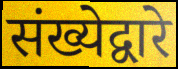
संख्येद्वारे